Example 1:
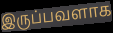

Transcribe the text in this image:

இருப்பவளாக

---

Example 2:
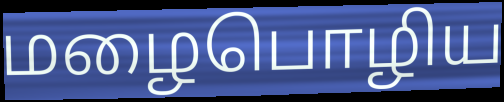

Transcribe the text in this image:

மழைபொழிய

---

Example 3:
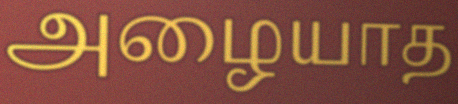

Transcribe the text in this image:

அழையாத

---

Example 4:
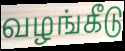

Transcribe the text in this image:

வழங்கீடு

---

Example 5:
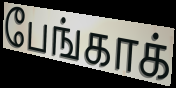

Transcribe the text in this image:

பேங்காக்